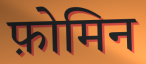
फ़ोमिन